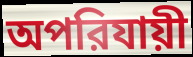
অপরিযায়ী